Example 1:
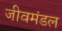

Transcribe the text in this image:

जीवमंडल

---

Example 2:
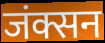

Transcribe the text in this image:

जंक्सन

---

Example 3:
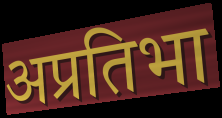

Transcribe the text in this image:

अप्रतिभा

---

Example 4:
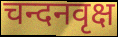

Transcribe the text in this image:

चन्दनवृक्ष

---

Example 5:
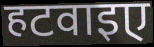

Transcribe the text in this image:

हटवाइए